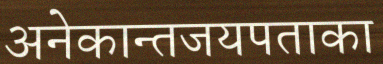
अनेकान्तजयपताका